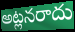
అట్లనరాదు